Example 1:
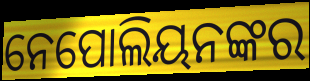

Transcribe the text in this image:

ନେପୋଲିୟନଙ୍କର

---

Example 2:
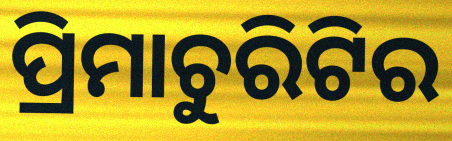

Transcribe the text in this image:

ପ୍ରିମାଚୁରିଟିର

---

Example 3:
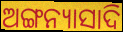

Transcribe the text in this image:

ଅଙ୍ଗନ୍ୟାସାଦି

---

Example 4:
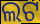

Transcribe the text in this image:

ଲଟ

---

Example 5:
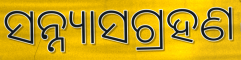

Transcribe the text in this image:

ସନ୍ନ୍ୟାସଗ୍ରହଣ